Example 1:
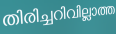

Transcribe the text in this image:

തിരിച്ചറിവില്ലാത്ത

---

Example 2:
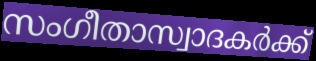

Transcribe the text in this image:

സംഗീതാസ്വാദകർക്ക്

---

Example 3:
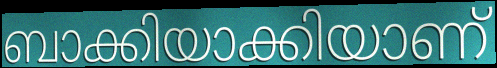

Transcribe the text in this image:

ബാക്കിയാക്കിയാണ്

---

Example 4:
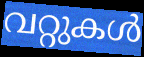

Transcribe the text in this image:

വറ്റുകൾ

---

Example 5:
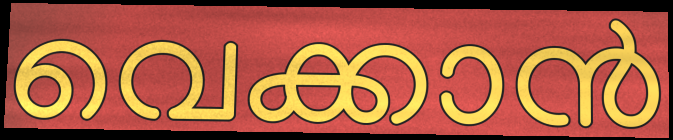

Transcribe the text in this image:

വെക്കാൻ